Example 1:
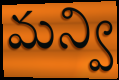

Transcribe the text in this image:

మన్వి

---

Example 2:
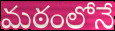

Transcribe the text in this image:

మఠంలోనే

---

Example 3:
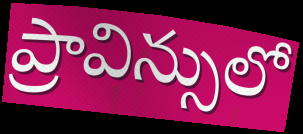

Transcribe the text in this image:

ప్రావిన్సులో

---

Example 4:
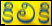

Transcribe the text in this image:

కిలికి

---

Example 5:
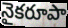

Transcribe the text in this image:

నైకరూపా